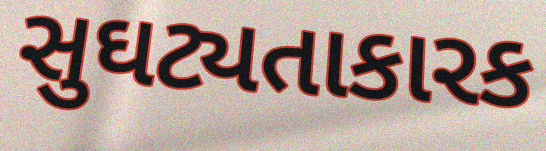
સુઘટ્યતાકારક